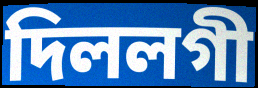
দিললগী